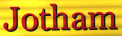
Jotham